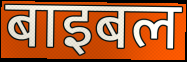
बाइबल